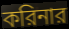
করিনার